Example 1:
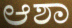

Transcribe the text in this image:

ಆಶಾ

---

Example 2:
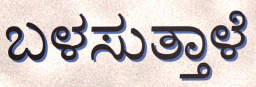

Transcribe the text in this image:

ಬಳಸುತ್ತಾಳೆ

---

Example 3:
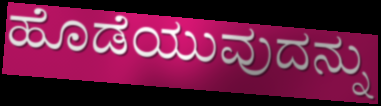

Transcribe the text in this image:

ಹೊಡೆಯುವುದನ್ನು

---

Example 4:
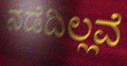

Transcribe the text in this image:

ನಡೆದಿಲ್ಲವೆ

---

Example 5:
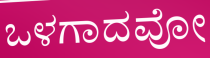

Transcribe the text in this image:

ಒಳಗಾದವೋ